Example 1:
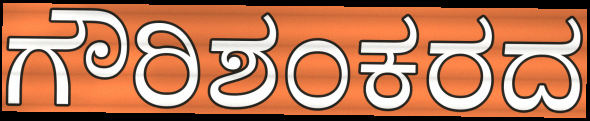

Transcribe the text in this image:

ಗೌರಿಶಂಕರದ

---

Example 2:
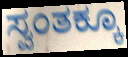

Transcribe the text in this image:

ಸ್ವಂತಕ್ಕೂ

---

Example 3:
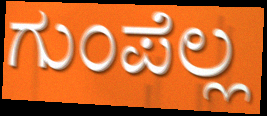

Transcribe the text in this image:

ಗುಂಪೆಲ್ಲ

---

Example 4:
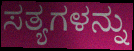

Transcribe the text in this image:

ಸತ್ಯಗಳನ್ನು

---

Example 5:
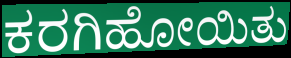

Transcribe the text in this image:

ಕರಗಿಹೋಯಿತು